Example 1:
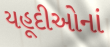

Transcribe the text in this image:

યહૂદીઓનાં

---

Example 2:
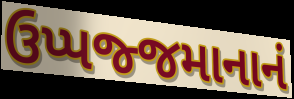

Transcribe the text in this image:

ઉપ્પજ્જમાનાનં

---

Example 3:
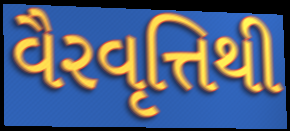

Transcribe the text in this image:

વૈરવૃત્તિથી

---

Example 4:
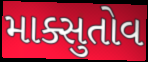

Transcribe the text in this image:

માક્સુતોવ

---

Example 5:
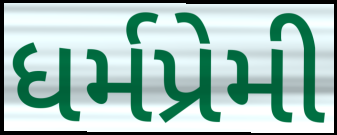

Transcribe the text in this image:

ધર્મપ્રેમી